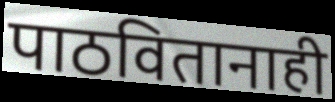
पाठवितानाही